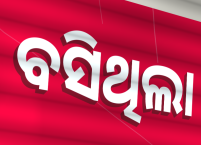
ବସିଥିଲା